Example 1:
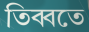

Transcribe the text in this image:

তিব্বতে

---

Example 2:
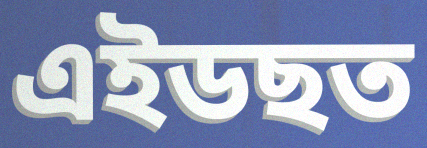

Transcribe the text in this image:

এইডছত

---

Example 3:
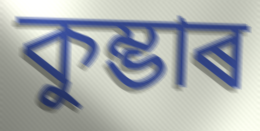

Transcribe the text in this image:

কুম্ভাৰ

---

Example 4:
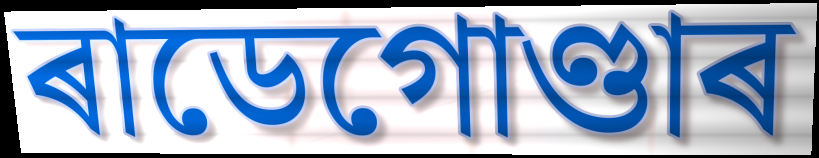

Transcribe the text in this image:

ৰাডেগোণ্ডাৰ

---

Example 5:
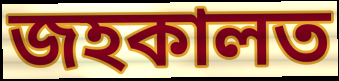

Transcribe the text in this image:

জহকালত